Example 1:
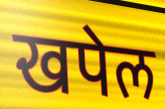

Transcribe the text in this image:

खपेल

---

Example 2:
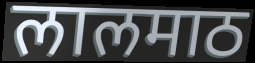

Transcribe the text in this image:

लालमाठ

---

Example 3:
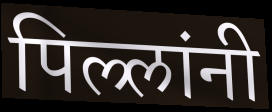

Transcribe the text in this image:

पिल्लांनी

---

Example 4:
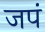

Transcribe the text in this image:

जपं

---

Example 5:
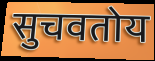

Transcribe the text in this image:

सुचवतोय